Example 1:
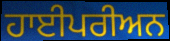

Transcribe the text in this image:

ਹਾਈਪਰੀਅਨ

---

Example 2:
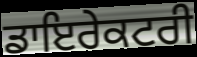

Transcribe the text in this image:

ਡਾਇਰੇਕਟਰੀ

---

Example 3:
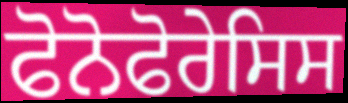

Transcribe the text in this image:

ਫੋਨੋਫੋਰੇਸਿਸ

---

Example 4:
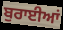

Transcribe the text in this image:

ਬੁਰਾਈਆਂ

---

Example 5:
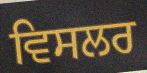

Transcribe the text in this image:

ਵਿਸਲਰ